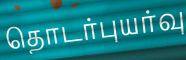
தொடர்புயர்வு